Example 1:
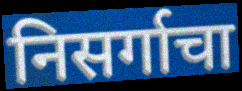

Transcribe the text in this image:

निसर्गाचा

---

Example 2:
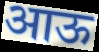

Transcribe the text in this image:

आऊ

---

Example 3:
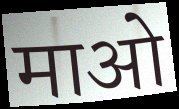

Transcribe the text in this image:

माओ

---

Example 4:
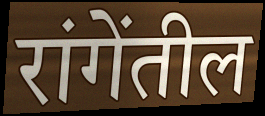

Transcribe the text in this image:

रांगेंतील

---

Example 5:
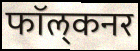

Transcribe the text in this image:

फॉल्कनर